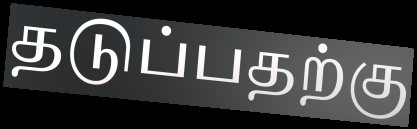
தடுப்பதற்கு